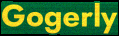
Gogerly